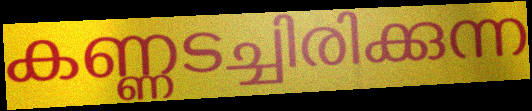
കണ്ണടച്ചിരിക്കുന്ന